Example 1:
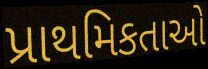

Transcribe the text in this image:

પ્રાથમિકતાઓ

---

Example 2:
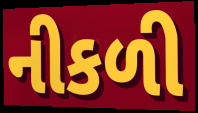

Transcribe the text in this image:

નીકળી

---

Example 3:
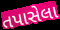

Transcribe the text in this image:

તપાસેલા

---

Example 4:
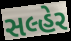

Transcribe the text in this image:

સલ્હેર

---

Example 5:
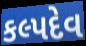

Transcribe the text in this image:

કલ્પદેવ